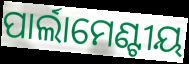
ପାର୍ଲାମେଣ୍ଟୀୟ